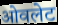
ओवलेट